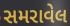
સમરાવેલ